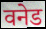
वनेड